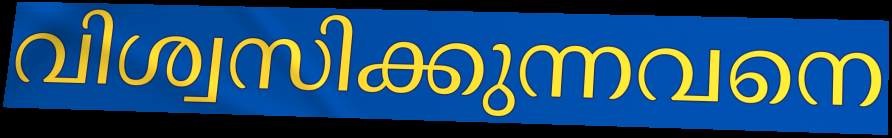
വിശ്വസിക്കുന്നവനെ